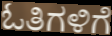
ಓತಿಗಳಿಗೆ